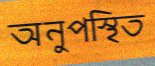
অনুপস্থিত